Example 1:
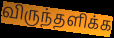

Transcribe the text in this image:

விருந்தளிக்க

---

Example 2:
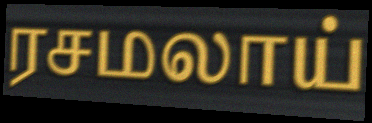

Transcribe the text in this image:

ரசமலாய்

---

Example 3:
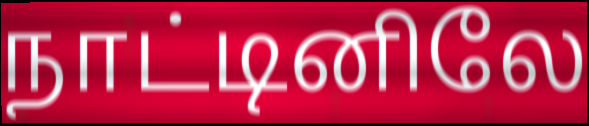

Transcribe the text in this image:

நாட்டினிலே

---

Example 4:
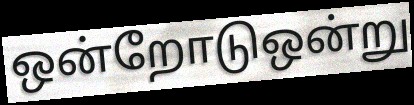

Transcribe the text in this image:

ஒன்றோடுஒன்று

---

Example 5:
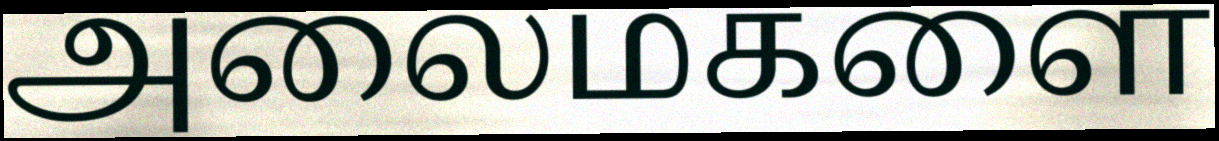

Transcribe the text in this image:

அலைமகளை